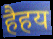
हैहय